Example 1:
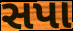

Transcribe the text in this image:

સપા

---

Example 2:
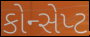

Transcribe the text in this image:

કોન્સેપ્ટ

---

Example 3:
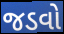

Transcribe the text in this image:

જડવો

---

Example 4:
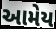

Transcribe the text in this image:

આમેય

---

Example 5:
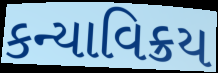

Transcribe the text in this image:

કન્યાવિક્રય